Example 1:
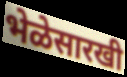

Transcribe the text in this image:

भेळेसारखी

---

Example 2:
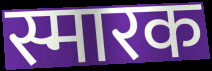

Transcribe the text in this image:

स्मारक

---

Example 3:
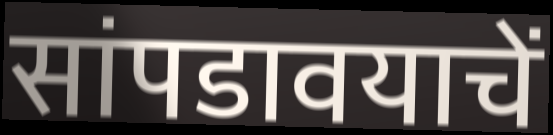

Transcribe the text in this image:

सांपडावयाचें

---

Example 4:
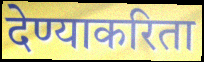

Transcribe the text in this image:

देण्याकरिता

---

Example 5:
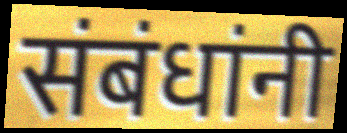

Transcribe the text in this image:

संबंधांनी